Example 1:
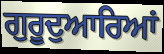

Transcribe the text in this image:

ਗੁਰੂਦੁਆਰਿਆਂ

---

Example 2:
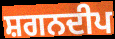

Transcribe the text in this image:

ਸ਼ਗਨਦੀਪ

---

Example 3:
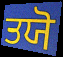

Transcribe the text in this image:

ਤਯੋ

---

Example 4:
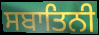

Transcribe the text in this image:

ਸਬਾਤਿਨੀ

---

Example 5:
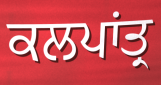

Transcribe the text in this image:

ਕਲਪਾਂਤ੍ਰ